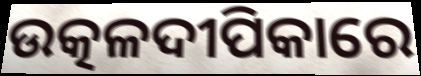
ଉତ୍କଳଦୀପିକାରେ